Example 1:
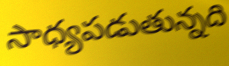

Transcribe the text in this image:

సాధ్యపడుతున్నది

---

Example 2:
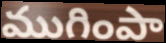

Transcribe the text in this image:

ముగింపా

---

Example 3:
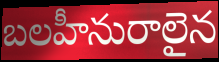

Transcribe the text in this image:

బలహీనురాలైన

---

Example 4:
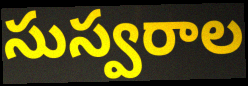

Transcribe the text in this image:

సుస్వరాల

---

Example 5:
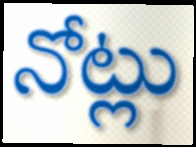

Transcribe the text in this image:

నోట్లు